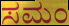
ಸಮಂ